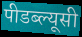
पीडब्ल्यूसी